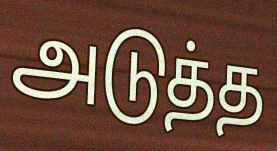
அடுத்த